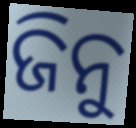
ଜିନୁ